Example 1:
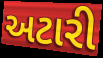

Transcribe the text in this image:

અટારી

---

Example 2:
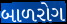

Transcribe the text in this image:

બાળરોગ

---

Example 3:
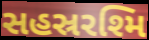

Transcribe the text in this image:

સહસ્રરશ્મિ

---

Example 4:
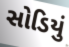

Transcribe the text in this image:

સોડિયું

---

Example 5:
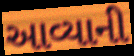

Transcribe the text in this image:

આવ્યાની